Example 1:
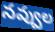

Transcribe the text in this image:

నవ్వుల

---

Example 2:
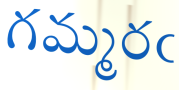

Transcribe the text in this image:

గమ్మరఁ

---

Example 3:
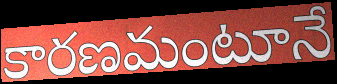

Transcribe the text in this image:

కారణమంటూనే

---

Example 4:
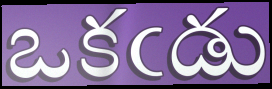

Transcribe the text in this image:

ఒకఁడు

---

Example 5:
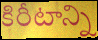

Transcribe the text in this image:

కిరీటాన్ని